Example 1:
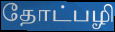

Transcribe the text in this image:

தோட்பழி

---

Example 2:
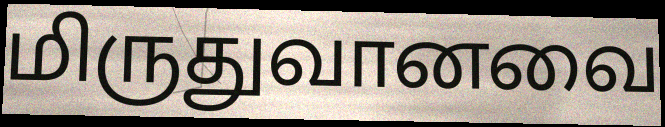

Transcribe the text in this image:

மிருதுவானவை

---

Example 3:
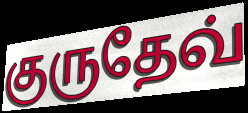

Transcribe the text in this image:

குருதேவ்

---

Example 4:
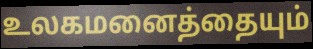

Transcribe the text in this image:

உலகமனைத்தையும்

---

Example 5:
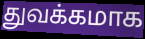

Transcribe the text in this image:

துவக்கமாக